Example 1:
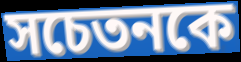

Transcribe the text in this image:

সচেতনকে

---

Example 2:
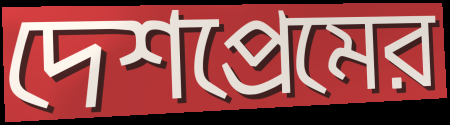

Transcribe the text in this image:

দেশপ্রেমের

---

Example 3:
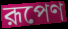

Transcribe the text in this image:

রূপেণ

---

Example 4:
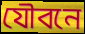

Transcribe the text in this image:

যৌবনে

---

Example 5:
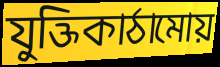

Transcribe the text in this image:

যুক্তিকাঠামোয়